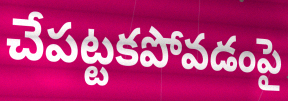
చేపట్టకపోవడంపై